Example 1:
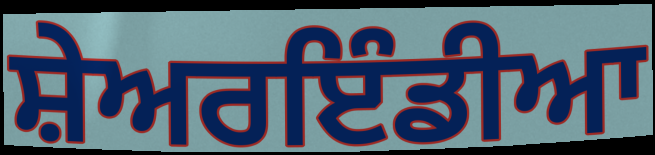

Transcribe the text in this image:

ਸ਼ੇਅਰਇੰਡੀਆ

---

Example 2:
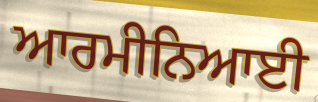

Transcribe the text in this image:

ਆਰਮੀਨਿਆਈ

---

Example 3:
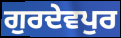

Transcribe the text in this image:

ਗੁਰਦੇਵਪੁਰ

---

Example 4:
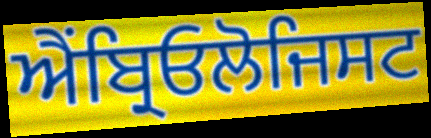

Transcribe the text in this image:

ਐਂਬ੍ਰਿਓਲੋਜਿਸਟ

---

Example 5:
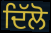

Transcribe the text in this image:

ਦਿੱਲੋ